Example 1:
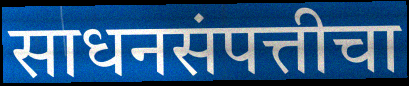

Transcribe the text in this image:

साधनसंपत्तीचा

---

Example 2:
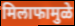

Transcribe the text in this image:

मिलाफामुळे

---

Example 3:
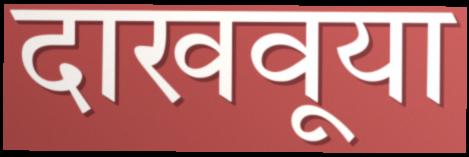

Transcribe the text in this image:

दाखवूया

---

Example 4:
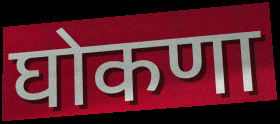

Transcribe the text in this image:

घोकणा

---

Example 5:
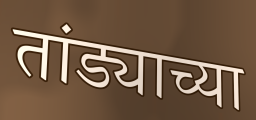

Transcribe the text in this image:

तांड्याच्या